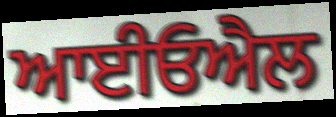
ਆਈਓਐਲ